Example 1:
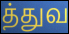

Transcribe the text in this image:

த்துவ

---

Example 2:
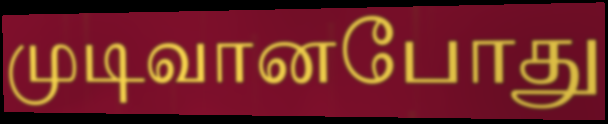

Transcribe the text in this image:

முடிவானபோது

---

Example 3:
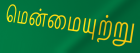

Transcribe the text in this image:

மென்மையுற்று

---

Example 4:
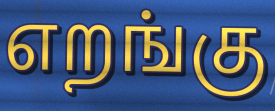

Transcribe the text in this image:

எறங்கு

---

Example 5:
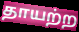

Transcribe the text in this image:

தாயற்ற